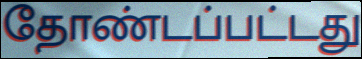
தோண்டப்பட்டது